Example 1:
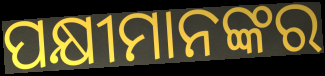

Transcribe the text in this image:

ପକ୍ଷୀମାନଙ୍କର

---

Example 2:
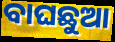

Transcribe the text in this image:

ବାଘଛୁଆ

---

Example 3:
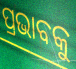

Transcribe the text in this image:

ପ୍ରଭାବକୁ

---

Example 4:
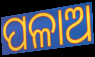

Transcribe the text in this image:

ପଳାଅ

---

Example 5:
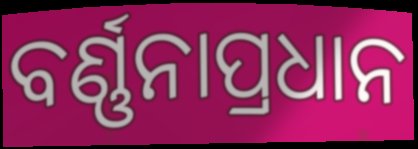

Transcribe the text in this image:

ବର୍ଣ୍ଣନାପ୍ରଧାନ